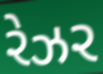
રેઝર